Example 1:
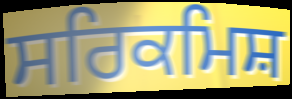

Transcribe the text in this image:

ਸਰਿਕਮਿਸ਼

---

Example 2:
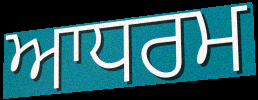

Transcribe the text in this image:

ਆਧਰਮ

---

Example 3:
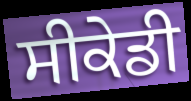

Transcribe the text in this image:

ਸੀਕੇਡੀ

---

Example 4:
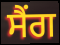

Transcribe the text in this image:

ਸੈਂਗ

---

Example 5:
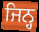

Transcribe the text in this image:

ਜਿਨ੍ਹ